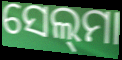
ସେଲ୍‌ମା